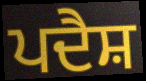
ਪਦੈਸ਼